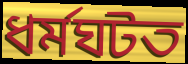
ধৰ্মঘটত